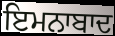
ਇਮਨਾਬਾਦ